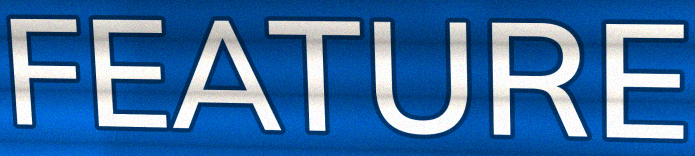
FEATURE